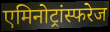
एमिनोट्रांस्फरेज